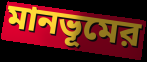
মানভূমের